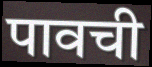
पावची